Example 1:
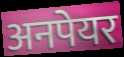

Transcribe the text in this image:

अनपेयर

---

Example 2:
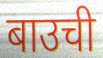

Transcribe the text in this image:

बाउची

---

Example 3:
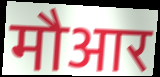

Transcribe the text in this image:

मौआर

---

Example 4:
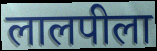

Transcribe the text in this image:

लालपीला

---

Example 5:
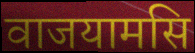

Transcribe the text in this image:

वाजयामसि